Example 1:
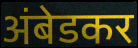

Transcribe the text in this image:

अंबेडकर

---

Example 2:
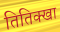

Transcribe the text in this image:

तितिक्खा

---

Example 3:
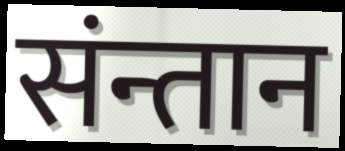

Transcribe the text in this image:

संन्तान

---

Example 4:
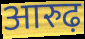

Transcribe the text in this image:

आरुढ़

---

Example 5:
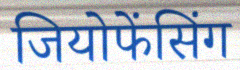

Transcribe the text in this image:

जियोफेंसिंग